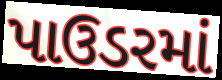
પાઉડરમાં